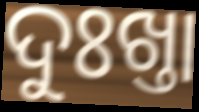
ଦୁଃଖ୍ତା